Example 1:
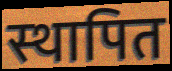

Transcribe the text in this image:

स्थापित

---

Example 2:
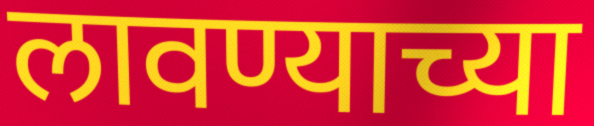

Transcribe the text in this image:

लावण्याच्या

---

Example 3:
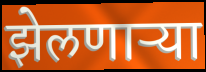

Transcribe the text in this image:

झेलणाऱ्या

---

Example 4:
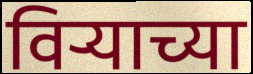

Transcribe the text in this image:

विर्‍याच्या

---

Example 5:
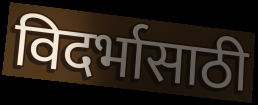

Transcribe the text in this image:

विदर्भासाठी